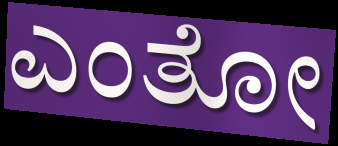
ಎಂತೋ